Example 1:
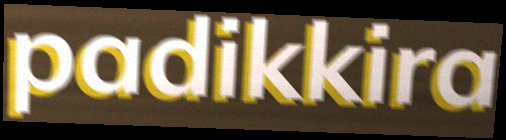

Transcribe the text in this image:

padikkira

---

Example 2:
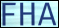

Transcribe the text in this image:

FHA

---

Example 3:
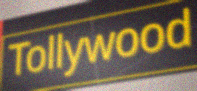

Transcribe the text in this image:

Tollywood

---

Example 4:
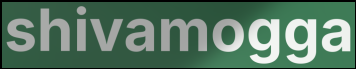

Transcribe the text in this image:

shivamogga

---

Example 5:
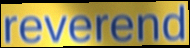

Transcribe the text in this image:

reverend